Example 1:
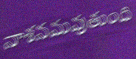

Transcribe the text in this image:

నాశనమవుతుంది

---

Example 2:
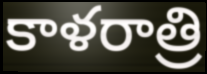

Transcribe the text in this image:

కాళరాత్రి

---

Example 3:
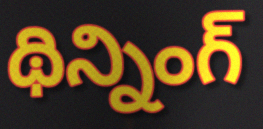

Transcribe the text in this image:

థిన్నింగ్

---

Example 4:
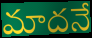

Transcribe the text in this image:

మాదనే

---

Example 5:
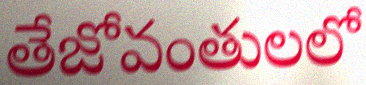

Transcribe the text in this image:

తేజోవంతులలో